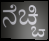
ನೆಚ್ಚಿ